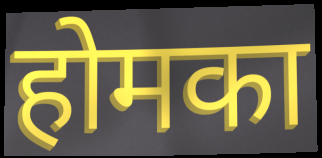
होमका